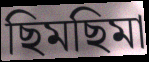
ছিমছিমা